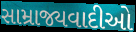
સામ્રાજ્યવાદીઓ